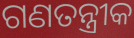
ଗଣତନ୍ତ୍ରୀକ